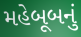
મહેબૂબનું